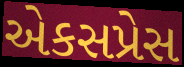
એકસપ્રેસ